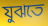
যুঝতে